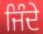
ਜਿੰਦੇ